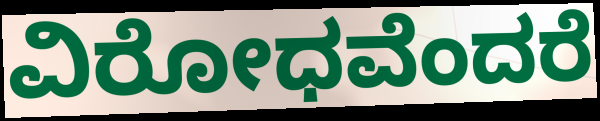
ವಿರೋಧವೆಂದರೆ